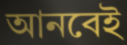
আনবেই